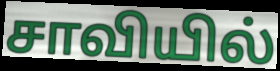
சாவியில்